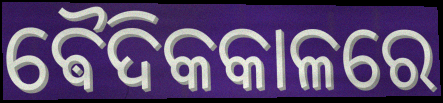
ଵୈଦିକକାଳରେ